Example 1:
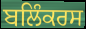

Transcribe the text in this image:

ਬਲਿੰਕਰਸ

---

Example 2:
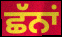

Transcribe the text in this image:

ਛੱਨਾਂ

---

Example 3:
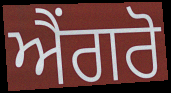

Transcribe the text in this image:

ਐਂਗਰੋ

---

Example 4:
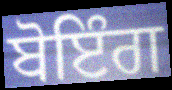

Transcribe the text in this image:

ਬੋਇੰਗ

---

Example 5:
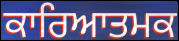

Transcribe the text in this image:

ਕਾਰਿਆਤਮਕ